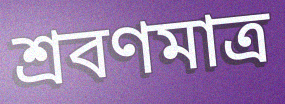
শ্রবণমাত্র